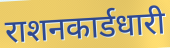
राशनकार्डधारी